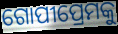
ଗୋପୀପ୍ରେମକୁ